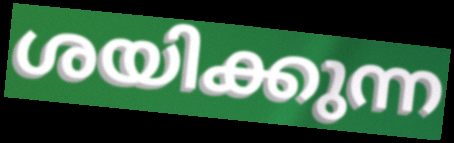
ശയിക്കുന്ന